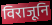
विराजूनि